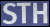
STH